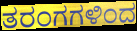
ತರಂಗಗಳಿಂದ